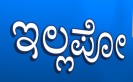
ಇಲ್ಲಪೋ